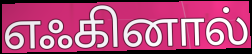
எஃகினால்